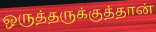
ஒருத்தருக்குத்தான்